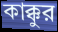
কাক্কুর